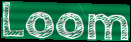
Loom